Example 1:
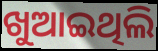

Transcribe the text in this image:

ଖୁଆଇଥିଲି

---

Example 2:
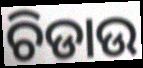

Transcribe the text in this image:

ଚିଡାଉ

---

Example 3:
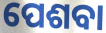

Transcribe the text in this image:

ପେଶବା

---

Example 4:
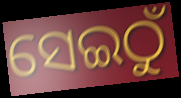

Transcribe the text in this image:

ସେଇଠୁଁ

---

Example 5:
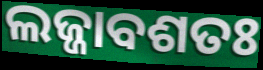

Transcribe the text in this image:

ଲଜ୍ଜାବଶତଃ